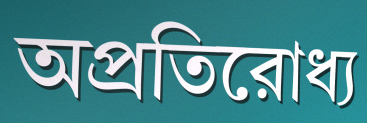
অপ্রতিরোধ্য